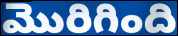
మొరిగింది